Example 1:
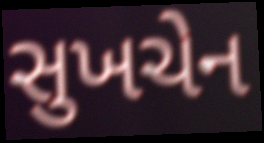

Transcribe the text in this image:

સુખચેન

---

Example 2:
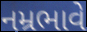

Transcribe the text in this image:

નમ્રભાવે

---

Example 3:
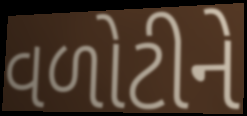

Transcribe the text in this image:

વળોટીને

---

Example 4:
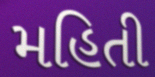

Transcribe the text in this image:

મહિતી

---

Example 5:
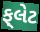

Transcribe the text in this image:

ફ્‌લેટ